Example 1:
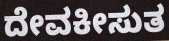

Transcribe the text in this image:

ದೇವಕೀಸುತ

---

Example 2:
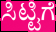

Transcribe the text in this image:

ಸಿಟ್ಟಿಗೆ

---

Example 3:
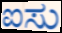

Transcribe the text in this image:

ಐಸು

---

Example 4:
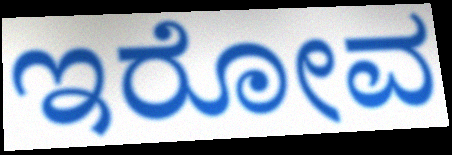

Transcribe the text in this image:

ಇರೋವ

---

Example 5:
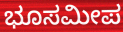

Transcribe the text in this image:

ಭೂಸಮೀಪ